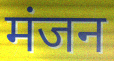
मंजन